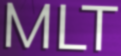
MLT